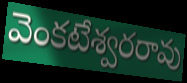
వెంకటేశ్వరరావు